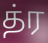
த்ர